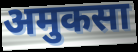
अमुकसा